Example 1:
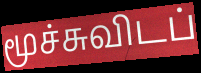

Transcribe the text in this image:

மூச்சுவிடப்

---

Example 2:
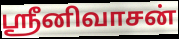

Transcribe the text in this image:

ஸ்ரீனிவாசன்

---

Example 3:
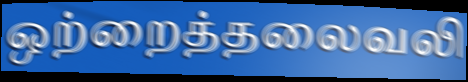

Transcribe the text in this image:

ஒற்றைத்தலைவலி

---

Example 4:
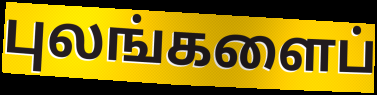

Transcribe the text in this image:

புலங்களைப்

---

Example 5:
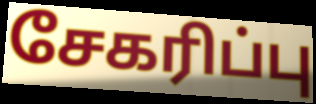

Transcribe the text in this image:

சேகரிப்பு